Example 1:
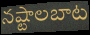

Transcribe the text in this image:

నష్టాలబాట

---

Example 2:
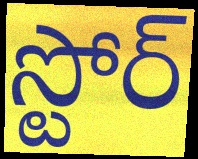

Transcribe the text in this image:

స్టోర్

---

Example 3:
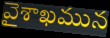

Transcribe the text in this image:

వైశాఖమున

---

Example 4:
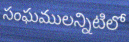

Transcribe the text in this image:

సంఘములన్నిటిలో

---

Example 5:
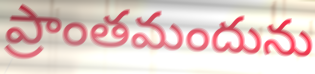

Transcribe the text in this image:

ప్రాంతమందును